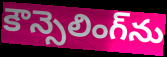
కౌన్సెలింగ్‌ను